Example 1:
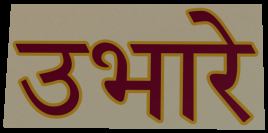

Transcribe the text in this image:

उभारे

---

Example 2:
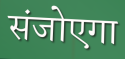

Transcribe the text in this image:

संजोएगा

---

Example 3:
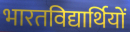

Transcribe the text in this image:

भारतविद्यार्थियों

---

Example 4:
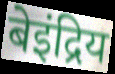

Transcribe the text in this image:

बेइंद्रिय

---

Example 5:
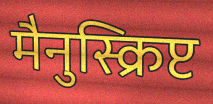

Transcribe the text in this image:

मैनुस्क्रिप्ट